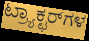
ಟ್ರ್ಯಾಕ್ಟರ್‌ಗಳ